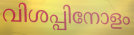
വിശപ്പിനോളം